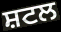
ਸ਼ਟਲ